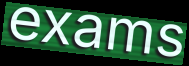
exams